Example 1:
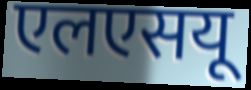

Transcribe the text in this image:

एलएसयू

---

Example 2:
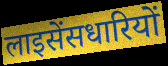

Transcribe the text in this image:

लाइसेंसधारियों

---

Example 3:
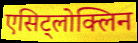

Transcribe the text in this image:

एसिट्लोक्लिन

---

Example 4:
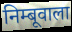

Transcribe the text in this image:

निम्बूवाला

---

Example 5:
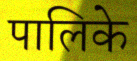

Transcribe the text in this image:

पालिके